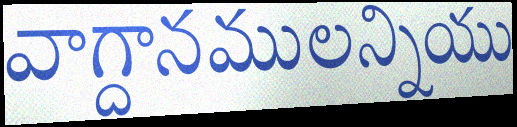
వాగ్దానములన్నియు